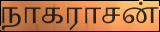
நாகராசன்